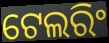
ଟେଲରିଂ